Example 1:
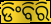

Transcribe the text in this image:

ଡିଂବିରି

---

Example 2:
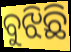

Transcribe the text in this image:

ବୁଝିଛି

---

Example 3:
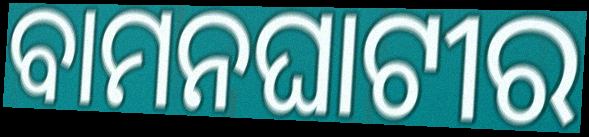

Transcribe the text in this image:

ବାମନଘାଟୀର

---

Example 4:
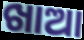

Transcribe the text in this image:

ଖାଆ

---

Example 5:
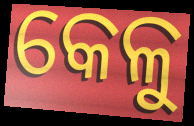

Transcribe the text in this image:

କେଳୁ